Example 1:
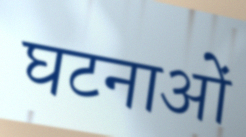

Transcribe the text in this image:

घटनाओं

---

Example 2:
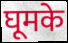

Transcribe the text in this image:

घूमके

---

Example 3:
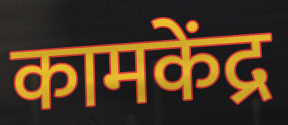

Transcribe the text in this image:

कामकेंद्र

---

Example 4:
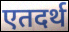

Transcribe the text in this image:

एतदर्थ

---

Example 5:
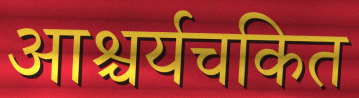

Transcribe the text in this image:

आश्चर्यचकित